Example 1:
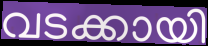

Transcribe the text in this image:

വടക്കായി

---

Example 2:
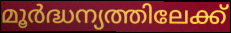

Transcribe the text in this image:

മൂർദ്ധന്യത്തിലേക്ക്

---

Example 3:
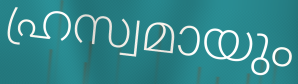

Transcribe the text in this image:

ഹ്രസ്വമായും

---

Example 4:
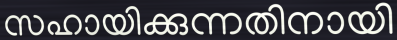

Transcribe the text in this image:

സഹായിക്കുന്നതിനായി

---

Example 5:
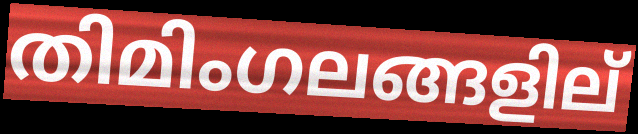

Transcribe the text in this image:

തിമിംഗലങ്ങളില്